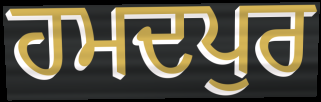
ਹਮਦਪੁਰ